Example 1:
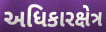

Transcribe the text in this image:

અધિકારક્ષેત્ર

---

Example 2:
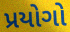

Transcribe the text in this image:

પ્રયોગો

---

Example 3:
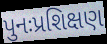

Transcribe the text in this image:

પુનઃપ્રશિક્ષણ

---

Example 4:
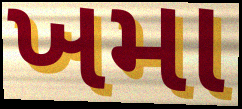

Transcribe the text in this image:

ખમા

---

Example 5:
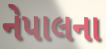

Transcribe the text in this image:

નેપાલના